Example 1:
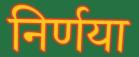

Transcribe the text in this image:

निर्णया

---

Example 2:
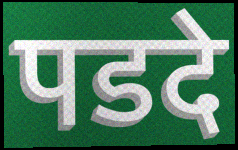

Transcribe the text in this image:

पडदे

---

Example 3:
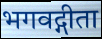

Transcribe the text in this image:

भगवद्गीता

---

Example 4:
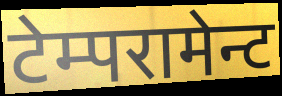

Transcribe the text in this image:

टेम्परामेन्ट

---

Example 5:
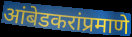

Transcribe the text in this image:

आंबेडकरांप्रमाणे